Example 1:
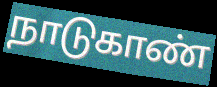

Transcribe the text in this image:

நாடுகாண்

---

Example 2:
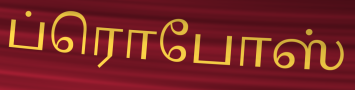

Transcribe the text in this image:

ப்ரொபோஸ்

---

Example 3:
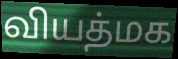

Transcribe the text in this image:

வியத்மக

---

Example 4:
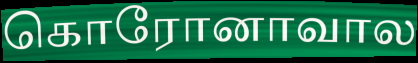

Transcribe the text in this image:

கொரோனாவால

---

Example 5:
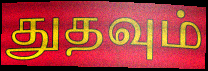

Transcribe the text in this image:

துதவும்